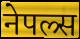
नेपल्स